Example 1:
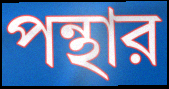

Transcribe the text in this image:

পন্থার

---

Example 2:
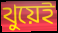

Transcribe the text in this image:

থুয়েই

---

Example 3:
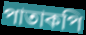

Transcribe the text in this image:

পাতাকপি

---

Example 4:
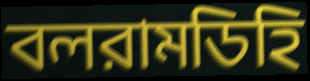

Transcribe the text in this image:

বলরামডিহি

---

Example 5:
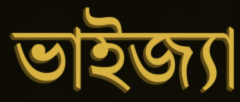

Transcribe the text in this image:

ভাইজ্যা